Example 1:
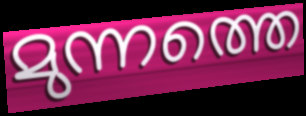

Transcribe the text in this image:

മുന്നത്തെ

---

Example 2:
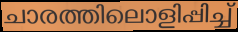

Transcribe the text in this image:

ചാരത്തിലൊളിപ്പിച്ച്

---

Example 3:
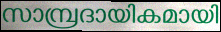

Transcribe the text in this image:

സാമ്പ്രദായികമായി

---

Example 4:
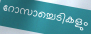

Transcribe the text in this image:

റോസാച്ചെടികളും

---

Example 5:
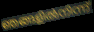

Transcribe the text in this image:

ഞങ്ങളിൽനിന്ന്